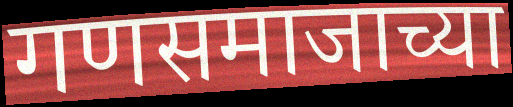
गणसमाजाच्या